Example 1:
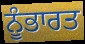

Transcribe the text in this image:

ਨੂੰਭਾਰਤ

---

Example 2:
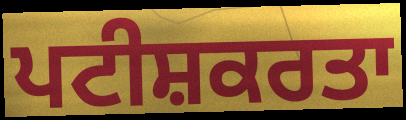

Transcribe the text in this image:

ਪਟੀਸ਼ਕਰਤਾ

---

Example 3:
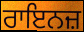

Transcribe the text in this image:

ਰਾਇਨਜ਼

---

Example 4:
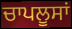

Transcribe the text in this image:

ਚਾਪਲੂਸਾਂ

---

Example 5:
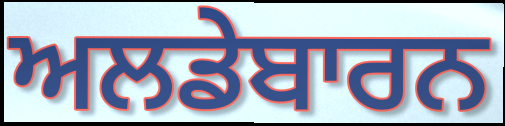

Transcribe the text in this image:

ਅਲਡੇਬਾਰਨ